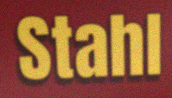
Stahl